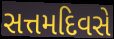
સત્તમદિવસે